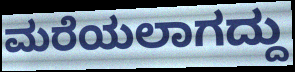
ಮರೆಯಲಾಗದ್ದು